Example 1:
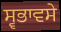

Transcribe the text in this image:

ਸ੍ਵਭਾਵਸੇ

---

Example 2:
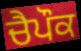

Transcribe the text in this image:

ਚੈਪੌਕ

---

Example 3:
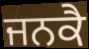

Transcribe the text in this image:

ਜਨਕੈ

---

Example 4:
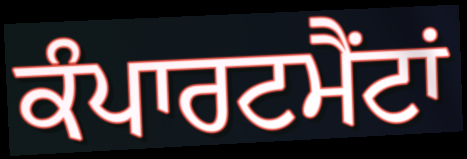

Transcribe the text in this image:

ਕੰਪਾਰਟਮੈਂਟਾਂ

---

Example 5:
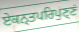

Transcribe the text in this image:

ਏਕਨ੍ਤਪਰਿਪੁਣ੍ਣਂ